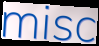
misc